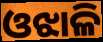
ଓଝାଳି